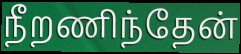
நீறணிந்தேன்